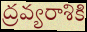
ద్రవ్యరాశికి